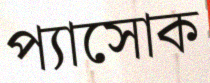
প্যাসোক